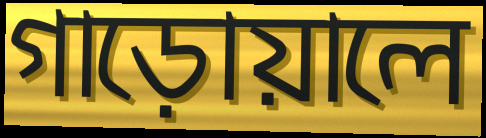
গাড়োয়ালে